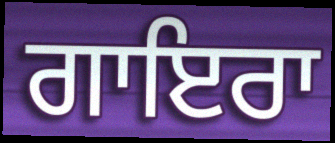
ਗਾਇਰਾ